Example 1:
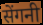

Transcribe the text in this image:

सेंगनी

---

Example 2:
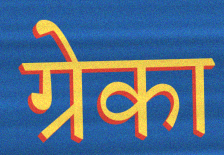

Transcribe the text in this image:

ग्रेका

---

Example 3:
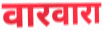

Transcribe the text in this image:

वारवारा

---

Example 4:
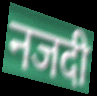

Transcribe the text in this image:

नजदी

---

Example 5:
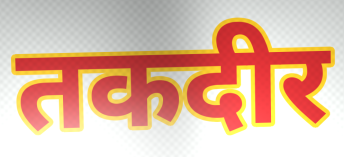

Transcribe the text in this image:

तकदीर